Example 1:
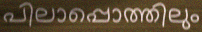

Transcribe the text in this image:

പിലാപ്പൊത്തിലും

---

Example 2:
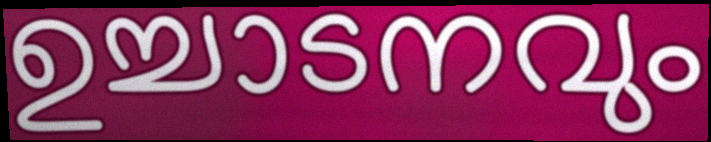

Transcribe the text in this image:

ഉച്ചാടനവും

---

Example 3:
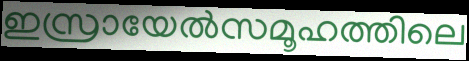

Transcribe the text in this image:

ഇസ്രായേൽസമൂഹത്തിലെ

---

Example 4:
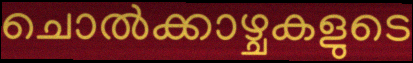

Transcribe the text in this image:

ചൊൽക്കാഴ്ചകളുടെ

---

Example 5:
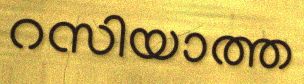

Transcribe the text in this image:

റസിയാത്ത